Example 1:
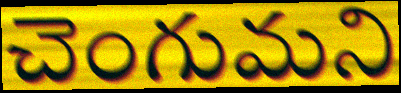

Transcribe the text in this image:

చెంగుమని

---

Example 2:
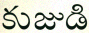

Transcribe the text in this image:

కుజుడి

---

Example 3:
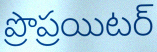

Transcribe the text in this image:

ప్రొప్రయిటర్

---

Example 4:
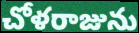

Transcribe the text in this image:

చోళరాజును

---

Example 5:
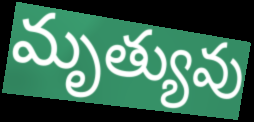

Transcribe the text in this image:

మృత్యువు